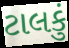
ટાલકું